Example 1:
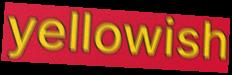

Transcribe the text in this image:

yellowish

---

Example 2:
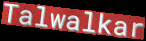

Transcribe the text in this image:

Talwalkar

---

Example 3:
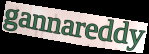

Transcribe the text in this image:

gannareddy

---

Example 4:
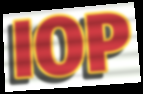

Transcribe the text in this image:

IOP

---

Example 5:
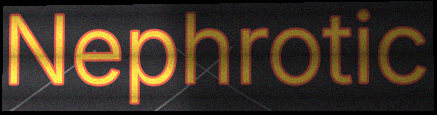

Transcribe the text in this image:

Nephrotic